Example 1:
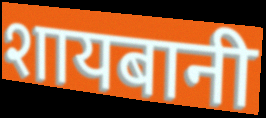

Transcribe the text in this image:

शायबानी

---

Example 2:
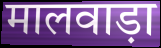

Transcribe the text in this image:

मालवाड़ा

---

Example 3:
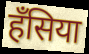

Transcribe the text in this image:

हँसिया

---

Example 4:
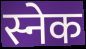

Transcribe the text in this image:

स्नेक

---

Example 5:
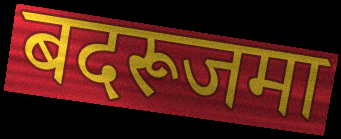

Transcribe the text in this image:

बदरूजमा